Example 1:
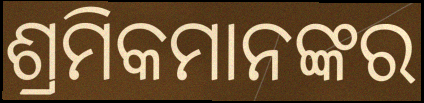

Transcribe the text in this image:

ଶ୍ରମିକମାନଙ୍କର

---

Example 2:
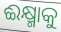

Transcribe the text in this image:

ଈକ୍ଷ୍ମାକୁ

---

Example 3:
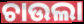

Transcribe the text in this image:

ଚାଉଲା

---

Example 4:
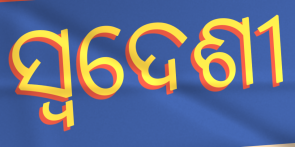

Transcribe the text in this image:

ସ୍ଵଦେଶୀ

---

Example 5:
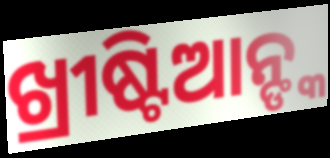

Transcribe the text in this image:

ଖ୍ରୀଷ୍ଟିଆନ୍ଙ୍କ